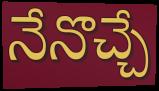
నేనొచ్చే